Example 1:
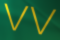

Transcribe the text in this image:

vv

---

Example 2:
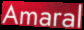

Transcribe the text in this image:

Amaral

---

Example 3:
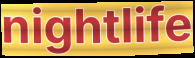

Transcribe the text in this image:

nightlife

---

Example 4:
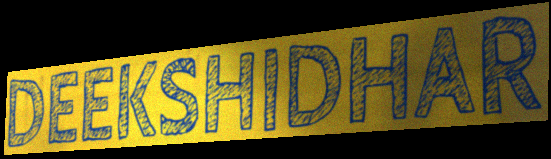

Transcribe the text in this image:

DEEKSHIDHAR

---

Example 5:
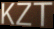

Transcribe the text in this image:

KZT